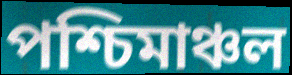
পশ্চিমাঞ্চল